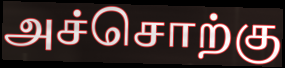
அச்சொற்கு